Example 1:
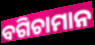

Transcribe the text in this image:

ବଗିଚାମାନ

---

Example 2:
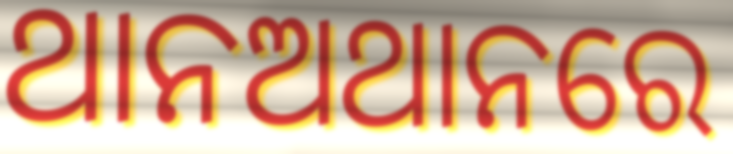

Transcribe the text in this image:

ଥାନଅଥାନରେ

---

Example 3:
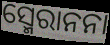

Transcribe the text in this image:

ସ୍ମେରାନନା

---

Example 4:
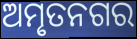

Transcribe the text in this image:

ଅମୃତନଗର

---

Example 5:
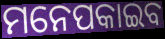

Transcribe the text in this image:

ମନେପକାଇବ